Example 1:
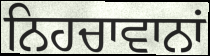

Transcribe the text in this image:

ਨਿਹਚਾਵਾਨਾਂ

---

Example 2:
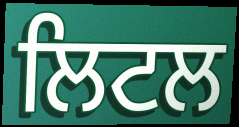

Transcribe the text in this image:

ਲਿਟਲ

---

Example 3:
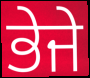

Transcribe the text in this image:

ਭੇਜੇ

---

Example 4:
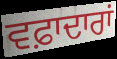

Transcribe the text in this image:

ਵਫ਼ਾਦਾਰਾਂ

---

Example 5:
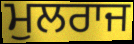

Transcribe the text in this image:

ਮੁਲਰਾਜ